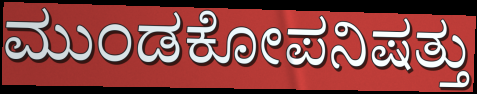
ಮುಂಡಕೋಪನಿಷತ್ತು